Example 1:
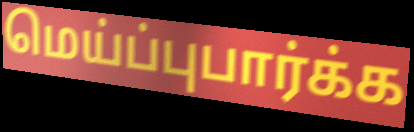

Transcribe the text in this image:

மெய்ப்புபார்க்க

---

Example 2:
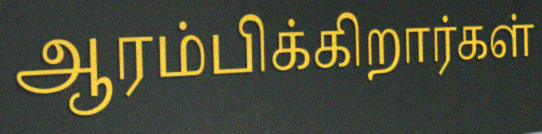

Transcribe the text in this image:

ஆரம்பிக்கிறார்கள்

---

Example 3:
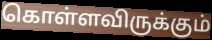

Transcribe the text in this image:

கொள்ளவிருக்கும்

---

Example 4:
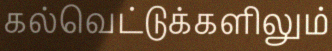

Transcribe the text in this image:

கல்வெட்டுக்களிலும்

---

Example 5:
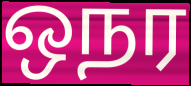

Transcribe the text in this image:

ஒநர